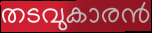
തടവുകാരൻ